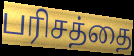
பரிசத்தை